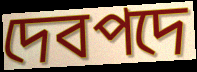
দেবপদে